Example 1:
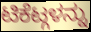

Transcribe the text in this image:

ಟಿಕೆಟ್ಗಳನ್ನು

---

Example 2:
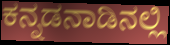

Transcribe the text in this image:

ಕನ್ನಡನಾಡಿನಲ್ಲಿ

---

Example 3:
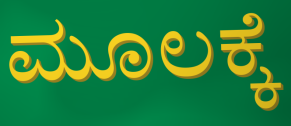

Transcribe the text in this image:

ಮೂಲಕ್ಕೆ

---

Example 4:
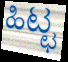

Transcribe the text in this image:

ಹಿಟ್ಟ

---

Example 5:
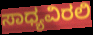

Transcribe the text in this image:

ಸಾಧ್ಯವಿರಲಿ